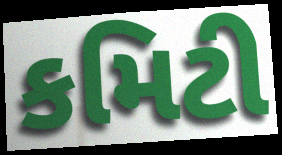
કમિટી